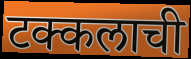
टक्कलाची